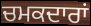
ਚਮਕਦਾਰਾਂ